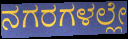
ನಗರಗಳಲ್ಲೇ